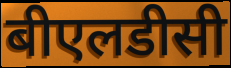
बीएलडीसी